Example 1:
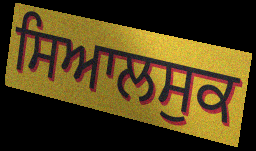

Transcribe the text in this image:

ਸਿਆਲਸੁਕ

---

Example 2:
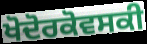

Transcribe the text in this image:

ਖੋਦੋਰਕੋਵਸਕੀ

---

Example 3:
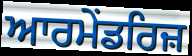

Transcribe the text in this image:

ਆਰਮੇਂਡਰਿਜ਼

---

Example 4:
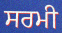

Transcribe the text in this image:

ਸਰਮੀ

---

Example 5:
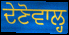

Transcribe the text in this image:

ਦੇਣੋਵਾਲ੍ਹ